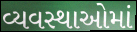
વ્યવસ્થાઓમાં